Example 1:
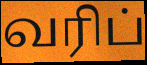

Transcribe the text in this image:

வரிப்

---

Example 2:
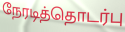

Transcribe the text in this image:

நேரடித்தொடர்பு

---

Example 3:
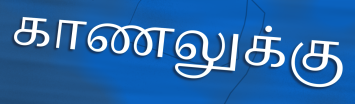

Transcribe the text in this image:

காணலுக்கு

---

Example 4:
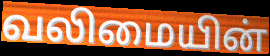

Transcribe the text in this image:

வலிமையின்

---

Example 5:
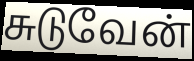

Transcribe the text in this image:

சுடுவேன்